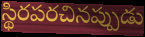
స్థిరపరచినప్పుడు